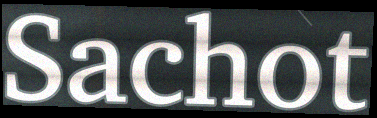
Sachot